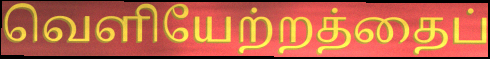
வெளியேற்றத்தைப்